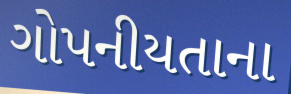
ગોપનીયતાના